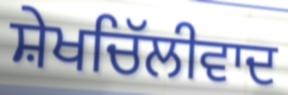
ਸ਼ੇਖਚਿੱਲੀਵਾਦ